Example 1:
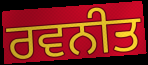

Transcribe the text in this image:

ਰਵਨੀਤ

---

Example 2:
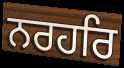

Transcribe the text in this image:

ਨਰਹਰਿ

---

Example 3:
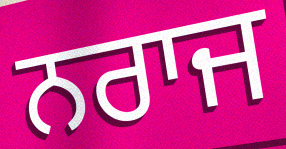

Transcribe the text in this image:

ਨਰਾਜ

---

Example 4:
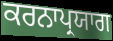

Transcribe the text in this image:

ਕਰਨਾਪ੍ਰਯਾਗ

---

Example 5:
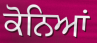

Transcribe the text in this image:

ਕੋਨਿਆਂ